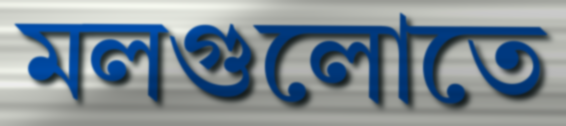
মলগুলোতে